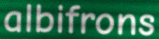
albifrons